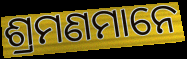
ଶ୍ରମଣମାନେ